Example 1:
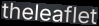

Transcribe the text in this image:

theleaflet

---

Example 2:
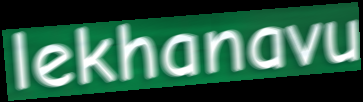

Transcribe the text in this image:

lekhanavu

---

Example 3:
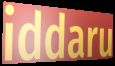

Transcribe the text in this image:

iddaru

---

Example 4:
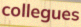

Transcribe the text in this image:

collegues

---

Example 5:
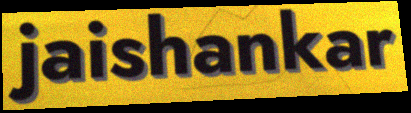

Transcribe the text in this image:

jaishankar